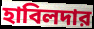
হাবিলদার